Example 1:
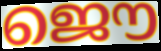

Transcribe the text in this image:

ജൌ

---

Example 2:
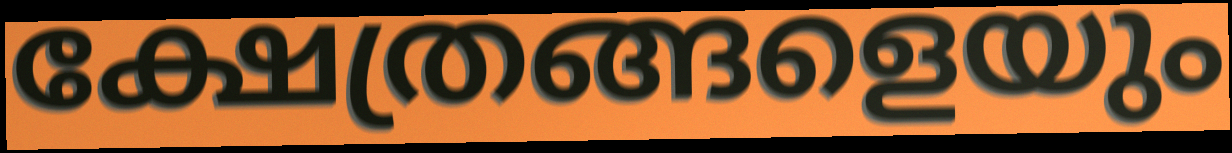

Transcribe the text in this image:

ക്ഷേത്രങ്ങളെയും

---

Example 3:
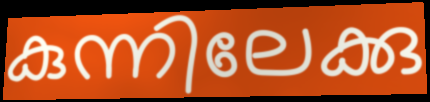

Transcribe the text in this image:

കുന്നിലേക്കു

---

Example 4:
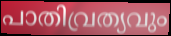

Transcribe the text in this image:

പാതിവ്രത്യവും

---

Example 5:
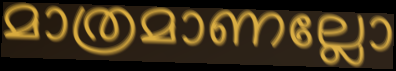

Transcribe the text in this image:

മാത്രമാണല്ലോ